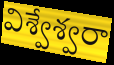
విశ్వేశ్వరా